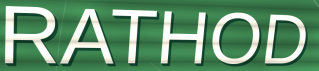
RATHOD